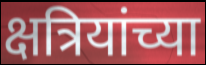
क्षत्रियांच्या